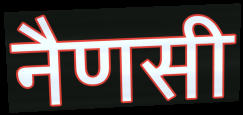
नैणसी